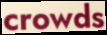
crowds